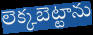
లెక్కబెట్టాను